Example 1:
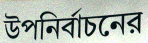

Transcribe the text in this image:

উপনির্বাচনের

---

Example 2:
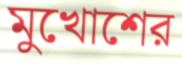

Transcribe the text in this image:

মুখোশের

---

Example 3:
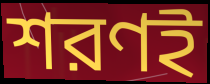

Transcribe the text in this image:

শরণই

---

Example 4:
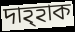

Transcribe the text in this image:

দাহ্হাক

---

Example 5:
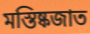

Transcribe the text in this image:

মস্তিষ্কজাত